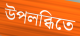
উপলব্ধিতে